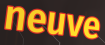
neuve